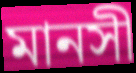
মানসী